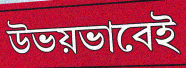
উভয়ভাবেই